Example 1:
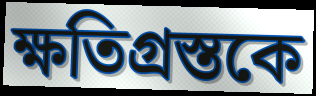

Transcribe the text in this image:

ক্ষতিগ্রস্তকে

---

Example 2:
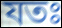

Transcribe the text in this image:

যতঃ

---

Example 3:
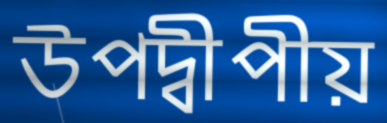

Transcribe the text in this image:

উপদ্বীপীয়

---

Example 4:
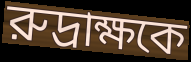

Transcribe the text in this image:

রুদ্রাক্ষকে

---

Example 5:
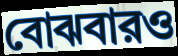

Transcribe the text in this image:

বোঝবারও